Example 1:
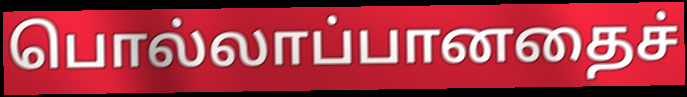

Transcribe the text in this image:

பொல்லாப்பானதைச்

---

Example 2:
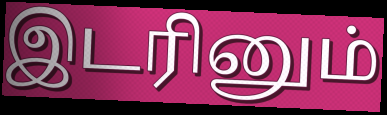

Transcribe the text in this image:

இடரினும்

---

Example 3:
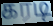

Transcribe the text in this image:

கரடி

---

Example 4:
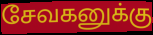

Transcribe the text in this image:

சேவகனுக்கு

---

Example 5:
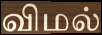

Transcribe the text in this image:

விமல்